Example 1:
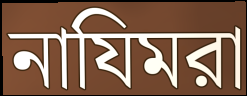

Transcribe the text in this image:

নাযিমরা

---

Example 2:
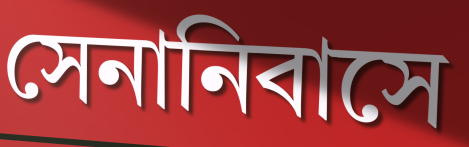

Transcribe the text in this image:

সেনানিবাসে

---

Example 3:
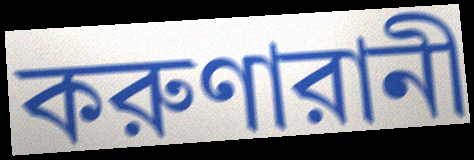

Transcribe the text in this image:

করুণারানী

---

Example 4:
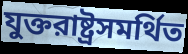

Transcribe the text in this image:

যুক্তরাষ্ট্রসমর্থিত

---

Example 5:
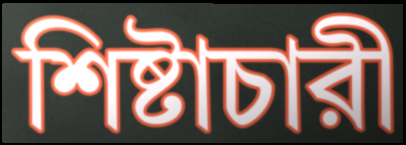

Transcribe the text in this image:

শিষ্টাচারী